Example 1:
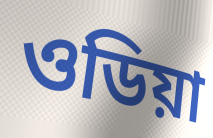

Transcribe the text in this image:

ওডিয়া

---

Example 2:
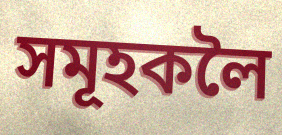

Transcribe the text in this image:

সমূহকলৈ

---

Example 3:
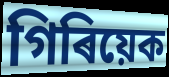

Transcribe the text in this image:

গিৰিয়েক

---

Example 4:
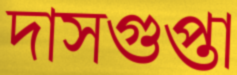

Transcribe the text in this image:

দাসগুপ্তা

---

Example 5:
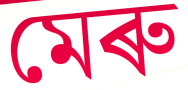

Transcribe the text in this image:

মেৰু